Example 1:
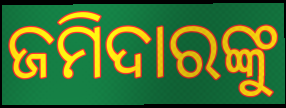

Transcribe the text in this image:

ଜମିଦାରଙ୍କୁ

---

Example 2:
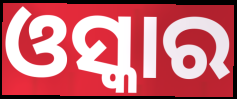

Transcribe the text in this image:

ଓସ୍କାର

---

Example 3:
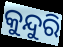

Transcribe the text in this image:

କୁନ୍ଦୁରି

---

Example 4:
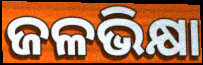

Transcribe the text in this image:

ଜଳଭିକ୍ଷା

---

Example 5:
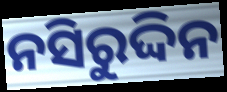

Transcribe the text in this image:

ନସିରୁଦ୍ଦିନ